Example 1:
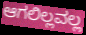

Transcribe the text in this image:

ಆಗಲಿಲ್ಲವಲ್ಲ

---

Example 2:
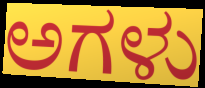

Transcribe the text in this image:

ಅಗಳು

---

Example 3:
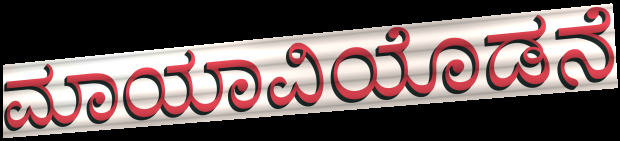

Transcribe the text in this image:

ಮಾಯಾವಿಯೊಡನೆ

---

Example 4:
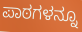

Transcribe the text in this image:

ಪಾಠಗಳನ್ನೂ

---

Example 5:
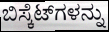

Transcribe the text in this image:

ಬಿಸ್ಕೆಟ್‌ಗಳನ್ನು